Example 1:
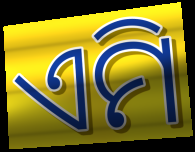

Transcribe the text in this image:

ଏମି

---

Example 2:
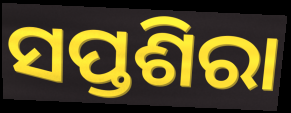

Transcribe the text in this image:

ସପ୍ତଶିରା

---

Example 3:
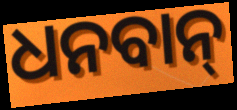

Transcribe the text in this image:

ଧନବାନ୍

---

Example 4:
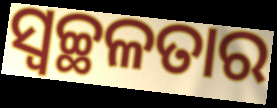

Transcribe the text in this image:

ସ୍ଵଚ୍ଛଳତାର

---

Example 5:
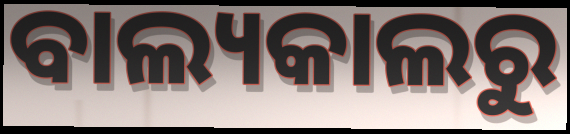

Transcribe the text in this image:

ବାଲ୍ୟକାଲରୁ